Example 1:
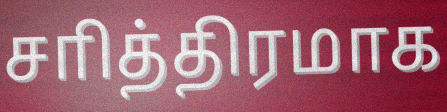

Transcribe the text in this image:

சரித்திரமாக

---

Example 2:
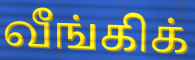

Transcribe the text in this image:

வீங்கிக்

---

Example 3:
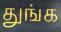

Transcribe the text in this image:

துங்க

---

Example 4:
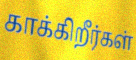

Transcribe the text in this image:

காக்கிறீர்கள்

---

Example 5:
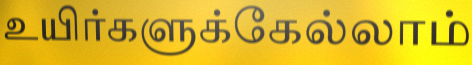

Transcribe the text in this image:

உயிர்களுக்கேல்லாம்